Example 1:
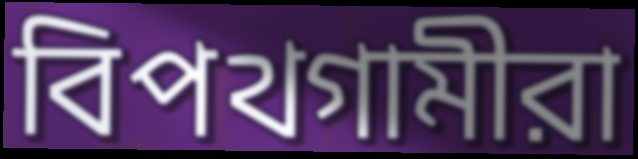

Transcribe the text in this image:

বিপথগামীরা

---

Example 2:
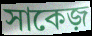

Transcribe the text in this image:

সাকেজ়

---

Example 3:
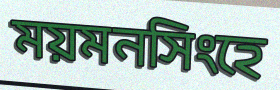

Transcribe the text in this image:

ময়মনসিংহে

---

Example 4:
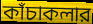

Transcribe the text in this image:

কাঁচাকলার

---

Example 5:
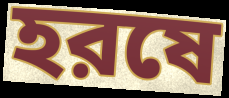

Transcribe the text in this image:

হরষে